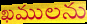
ఖములను